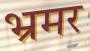
भ्रमर